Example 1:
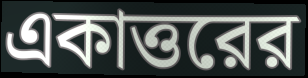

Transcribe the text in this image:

একাত্তরের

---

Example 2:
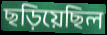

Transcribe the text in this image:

ছড়িয়েছিল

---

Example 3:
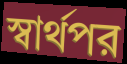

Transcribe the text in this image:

স্বার্থপর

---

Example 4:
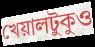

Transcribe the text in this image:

খেয়ালটুকুও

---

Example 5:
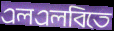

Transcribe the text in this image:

এলএলবিতে